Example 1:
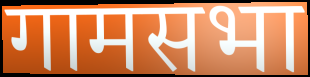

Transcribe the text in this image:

गामसभा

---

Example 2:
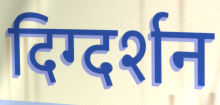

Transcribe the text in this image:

दिग्दर्शन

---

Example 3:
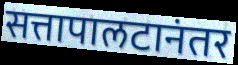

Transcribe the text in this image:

सत्तापालटानंतर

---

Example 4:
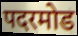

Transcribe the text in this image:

पदरमोड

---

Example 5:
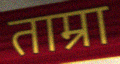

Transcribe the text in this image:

ताम्रा